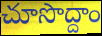
చూసొద్దాం